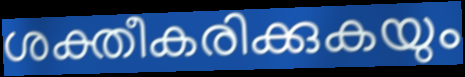
ശക്തീകരിക്കുകയും